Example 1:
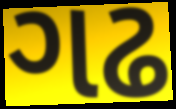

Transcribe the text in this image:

ગઢ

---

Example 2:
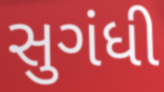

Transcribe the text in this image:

સુગંધી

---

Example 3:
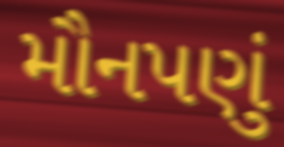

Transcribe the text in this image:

મૌનપણું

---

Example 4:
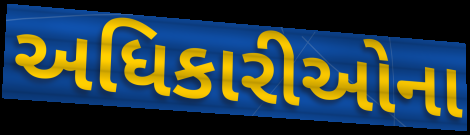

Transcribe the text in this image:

અધિકારીઓના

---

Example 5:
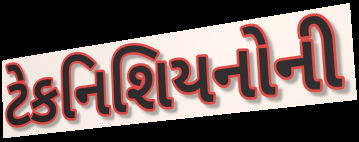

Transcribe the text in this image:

ટેકનિશિયનોની